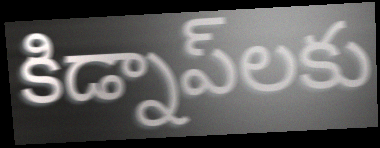
కిడ్నాప్‌లకు